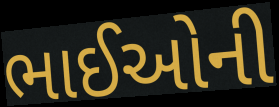
ભાઈઓની